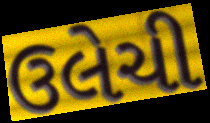
ઉલેચી